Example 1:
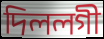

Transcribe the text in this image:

দিললগী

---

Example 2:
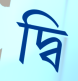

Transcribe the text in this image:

দ্বি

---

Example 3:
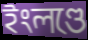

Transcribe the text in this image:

ইংলণ্ডে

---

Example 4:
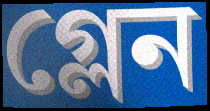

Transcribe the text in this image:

গ্লেন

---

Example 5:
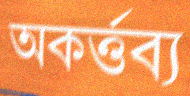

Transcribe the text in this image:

অকর্ত্তব্য